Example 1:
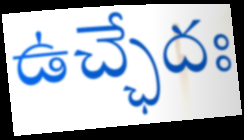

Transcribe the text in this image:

ఉచ్ఛేదః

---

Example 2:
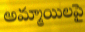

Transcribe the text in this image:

అమ్మాయిలపై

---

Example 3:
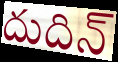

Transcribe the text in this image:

దుదిన్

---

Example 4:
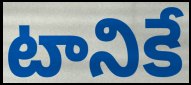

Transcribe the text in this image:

టానికే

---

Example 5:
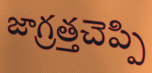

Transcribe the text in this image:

జాగ్రత్తచెప్పి